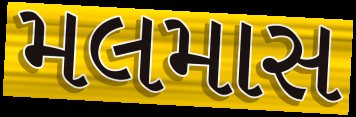
મલમાસ